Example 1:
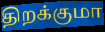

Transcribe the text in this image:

திறக்குமா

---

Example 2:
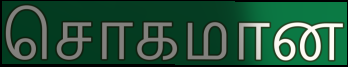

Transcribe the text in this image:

சொகமான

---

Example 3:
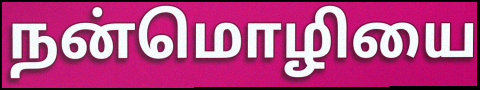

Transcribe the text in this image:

நன்மொழியை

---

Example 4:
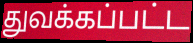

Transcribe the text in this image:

துவக்கப்பட்ட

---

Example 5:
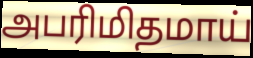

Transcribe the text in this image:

அபரிமிதமாய்